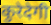
कुरेदेगी